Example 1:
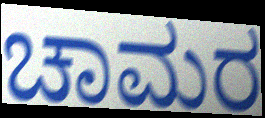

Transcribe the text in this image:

ಚಾಮರ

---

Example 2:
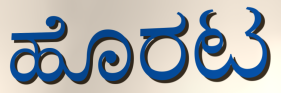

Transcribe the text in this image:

ಹೊರಟ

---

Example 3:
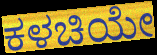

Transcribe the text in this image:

ಕಳಚಿಯೇ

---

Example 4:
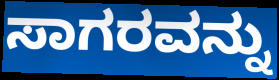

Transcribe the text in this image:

ಸಾಗರವನ್ನು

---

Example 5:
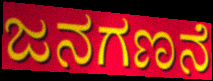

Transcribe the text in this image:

ಜನಗಣನೆ